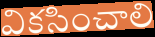
వికసించాలి